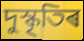
দুস্কৃতিৰ